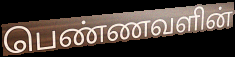
பெண்ணவளின்